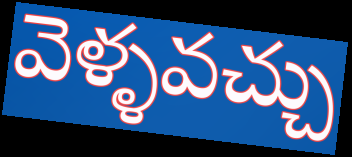
వెళ్ళవచ్చు